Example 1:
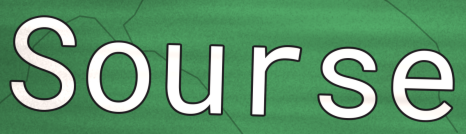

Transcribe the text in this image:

Sourse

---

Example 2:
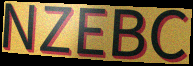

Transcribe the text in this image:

NZEBC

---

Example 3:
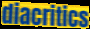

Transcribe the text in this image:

diacritics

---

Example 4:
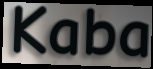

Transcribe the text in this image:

Kaba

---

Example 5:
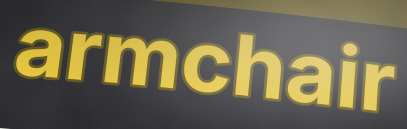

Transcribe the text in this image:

armchair